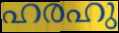
ഹരഹു